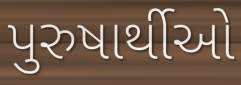
પુરુષાર્થીઓ